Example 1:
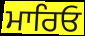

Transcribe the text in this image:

ਮਾਰਿਓ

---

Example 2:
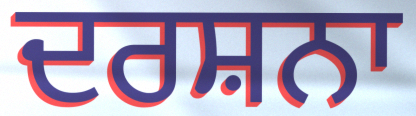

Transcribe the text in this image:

ਦਰਸ਼ਨਾ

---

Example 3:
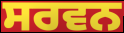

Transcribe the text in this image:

ਸਰਵਨ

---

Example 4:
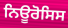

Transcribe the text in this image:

ਨਿਊਰੋਸਿਸ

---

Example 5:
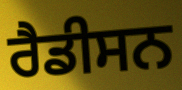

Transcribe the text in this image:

ਰੈਡੀਸਨ